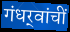
गंधर्वांचीं